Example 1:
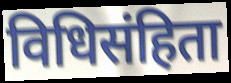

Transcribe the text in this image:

विधिसंहिता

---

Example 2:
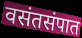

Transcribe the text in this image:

वसंतसंपात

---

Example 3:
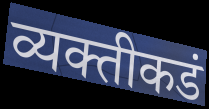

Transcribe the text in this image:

व्यक्तीकडं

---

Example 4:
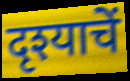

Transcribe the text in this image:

दृश्याचें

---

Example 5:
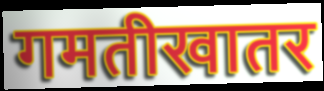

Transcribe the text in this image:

गमतीखातर